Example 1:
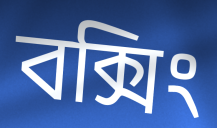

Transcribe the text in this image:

বক্সিং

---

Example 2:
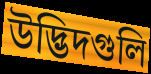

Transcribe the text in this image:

উদ্ভিদগুলি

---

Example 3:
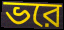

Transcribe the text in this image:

ভরে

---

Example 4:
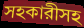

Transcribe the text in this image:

সহকারীসহ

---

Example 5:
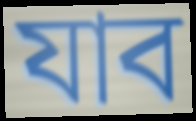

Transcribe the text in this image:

যাব